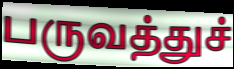
பருவத்துச்